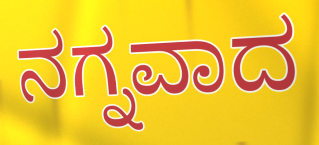
ನಗ್ನವಾದ